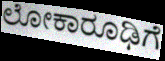
ಲೋಕಾರೂಢಿಗೆ